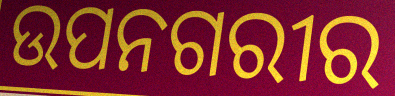
ଉପନଗରୀର